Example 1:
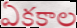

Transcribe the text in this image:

ఏకకాల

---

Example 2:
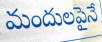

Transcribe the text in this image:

మందులపైనే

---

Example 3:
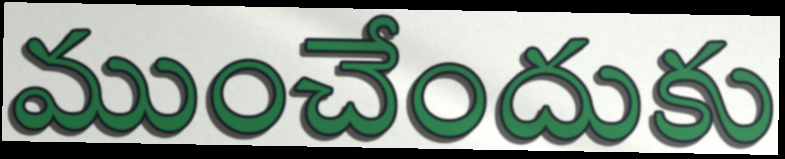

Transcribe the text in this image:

ముంచేందుకు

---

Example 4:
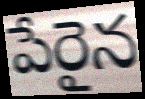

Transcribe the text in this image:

పేరైన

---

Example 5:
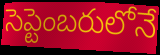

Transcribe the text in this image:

సెప్టెంబరులోనే